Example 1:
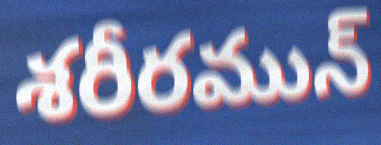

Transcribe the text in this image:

శరీరమున్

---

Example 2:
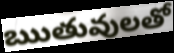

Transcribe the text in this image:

ఋతువులతో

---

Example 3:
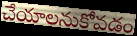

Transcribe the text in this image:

చేయాలనుకోవడం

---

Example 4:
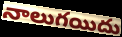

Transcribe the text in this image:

నాలుగయిదు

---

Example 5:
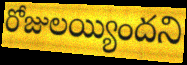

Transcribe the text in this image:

రోజులయ్యిందని